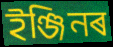
ইঞ্জিনৰ